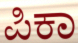
ಪಿಕಾ